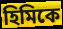
হিমিকে